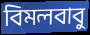
বিমলবাবু